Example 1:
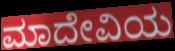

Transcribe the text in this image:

ಮಾದೇವಿಯ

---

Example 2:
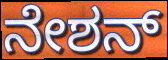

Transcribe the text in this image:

ನೇಶನ್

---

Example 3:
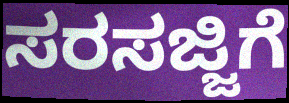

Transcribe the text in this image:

ಸರಸಜ್ಜಿಗೆ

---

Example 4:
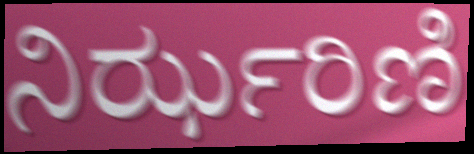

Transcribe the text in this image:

ನಿರ್ಝರಿಣಿ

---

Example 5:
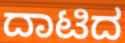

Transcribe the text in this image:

ದಾಟಿದ